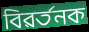
বিৱৰ্তনক